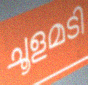
ചൂളമടി